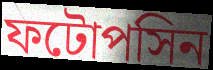
ফটোপসিন